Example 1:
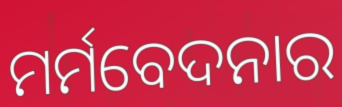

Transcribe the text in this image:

ମର୍ମବେଦନାର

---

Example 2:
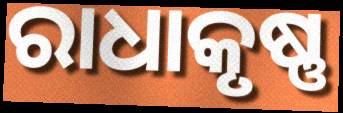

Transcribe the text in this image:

ରାଧାକୃଷ୍ଣ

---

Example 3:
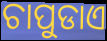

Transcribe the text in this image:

ଚାପୁଡାଏ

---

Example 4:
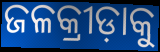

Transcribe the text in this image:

ଜଳକ୍ରୀଡ଼ାକୁ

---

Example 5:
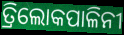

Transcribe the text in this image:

ତ୍ରିଲୋକପାଳିନୀ